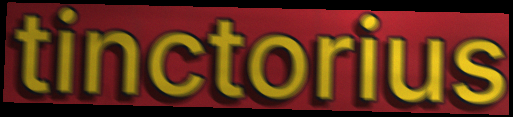
tinctorius